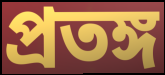
প্রতঙ্গ